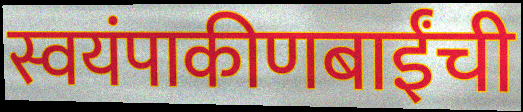
स्वयंपाकीणबाईंची